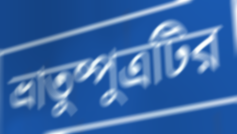
ভ্রাতুষ্পুত্রটির